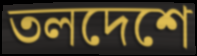
তলদেশে